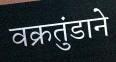
वक्रतुंडाने